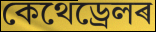
কেথেড্ৰেলৰ